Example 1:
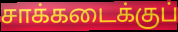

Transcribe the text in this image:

சாக்கடைக்குப்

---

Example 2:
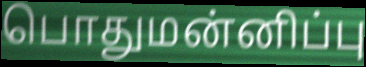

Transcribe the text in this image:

பொதுமன்னிப்பு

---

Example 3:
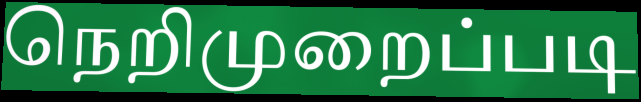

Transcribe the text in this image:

நெறிமுறைப்படி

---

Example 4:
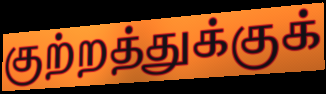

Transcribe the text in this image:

குற்றத்துக்குக்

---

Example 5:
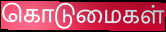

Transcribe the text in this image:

கொடுமைகள்